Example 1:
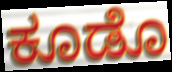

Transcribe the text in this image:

ಕೂಡೊ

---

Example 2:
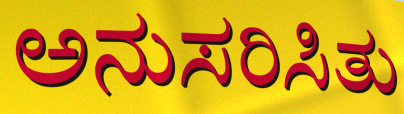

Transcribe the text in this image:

ಅನುಸರಿಸಿತು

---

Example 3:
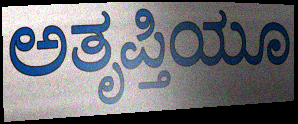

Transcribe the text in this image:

ಅತೃಪ್ತಿಯೂ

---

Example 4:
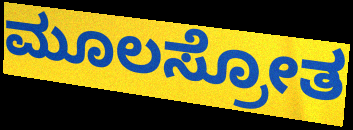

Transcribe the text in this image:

ಮೂಲಸ್ರೋತ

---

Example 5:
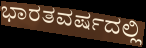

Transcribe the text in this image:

ಭಾರತವರ್ಷದಲ್ಲಿ